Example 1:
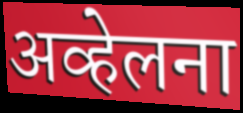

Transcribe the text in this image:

अव्हेलना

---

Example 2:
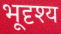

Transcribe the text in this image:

भूदृश्य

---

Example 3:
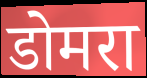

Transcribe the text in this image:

डोमरा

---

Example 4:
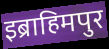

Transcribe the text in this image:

इब्राहिमपुर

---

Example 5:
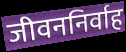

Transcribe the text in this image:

जीवननिर्वाह